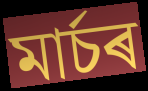
মাৰ্চৰ